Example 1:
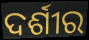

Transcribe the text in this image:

ଦର୍ଶୀର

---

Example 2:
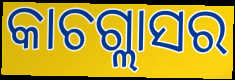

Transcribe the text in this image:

କାଚଗ୍ଲାସର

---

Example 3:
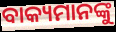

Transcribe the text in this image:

ବାକ୍ୟମାନଙ୍କୁ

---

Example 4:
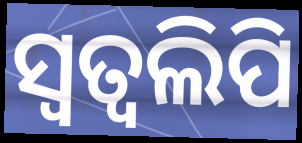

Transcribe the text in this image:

ସ୍ୱତ୍ୱଲିପି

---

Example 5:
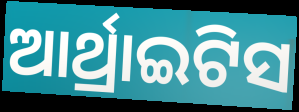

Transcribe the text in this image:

ଆର୍ଥ୍ରାଇଟିସ